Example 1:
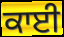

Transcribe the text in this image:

ਕਾਈ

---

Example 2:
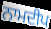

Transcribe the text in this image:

ਨਾਮਦੀਪ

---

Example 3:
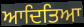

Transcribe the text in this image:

ਆਦਿਤਿਆ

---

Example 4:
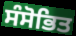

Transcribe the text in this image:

ਸੰਸੋਭਿਤ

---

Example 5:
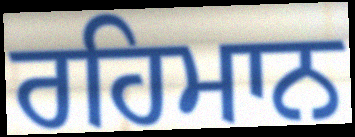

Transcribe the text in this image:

ਰਹਿਮਾਨ